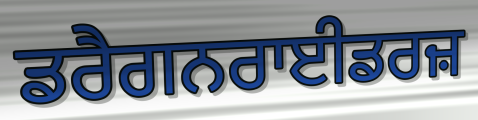
ਡਰੈਗਨਰਾਈਡਰਜ਼